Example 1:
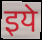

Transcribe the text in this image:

इये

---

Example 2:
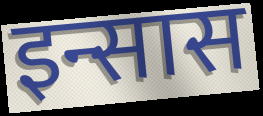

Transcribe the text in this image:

इन्सास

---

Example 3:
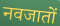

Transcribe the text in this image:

नवजातों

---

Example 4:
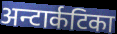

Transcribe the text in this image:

अन्टार्कटिका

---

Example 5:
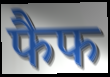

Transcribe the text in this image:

फैफ